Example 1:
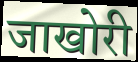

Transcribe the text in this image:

जाखोरी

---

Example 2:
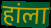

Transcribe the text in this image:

हांला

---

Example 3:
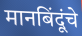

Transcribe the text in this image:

मानबिंदूंचे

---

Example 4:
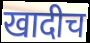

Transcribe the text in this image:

खादीच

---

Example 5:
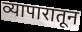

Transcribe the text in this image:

व्यापारातून